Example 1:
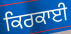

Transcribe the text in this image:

ਕਿਰਕਾਈ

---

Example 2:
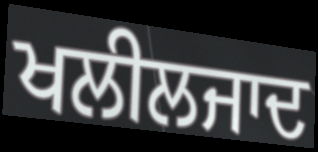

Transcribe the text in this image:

ਖਲੀਲਜਾਦ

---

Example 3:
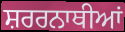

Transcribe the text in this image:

ਸ਼ਰਰਨਾਥੀਆਂ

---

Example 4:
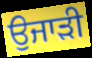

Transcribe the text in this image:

ਉਜਾੜੀ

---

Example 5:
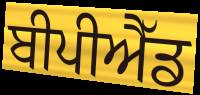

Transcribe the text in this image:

ਬੀਪੀਐੱਡ